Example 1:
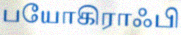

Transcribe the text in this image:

பயோகிராஃபி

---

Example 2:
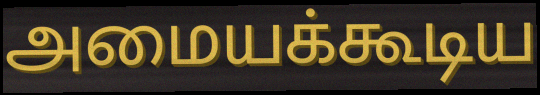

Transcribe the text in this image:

அமையக்கூடிய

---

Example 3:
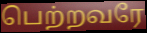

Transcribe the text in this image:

பெற்றவரே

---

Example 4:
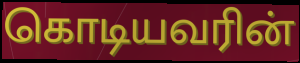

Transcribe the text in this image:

கொடியவரின்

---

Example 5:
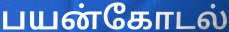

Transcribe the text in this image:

பயன்கோடல்